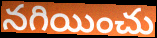
నగియించు